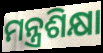
ମନ୍ତ୍ରଶିକ୍ଷା